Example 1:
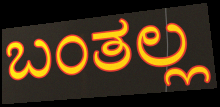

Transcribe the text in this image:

ಬಂತಲ್ಲ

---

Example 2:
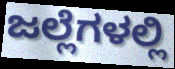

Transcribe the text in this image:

ಜಲ್ಲೆಗಳಲ್ಲಿ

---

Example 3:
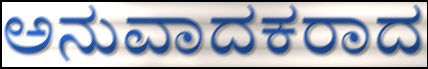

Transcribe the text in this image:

ಅನುವಾದಕರಾದ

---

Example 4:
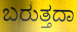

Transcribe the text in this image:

ಬರುತ್ತದಾ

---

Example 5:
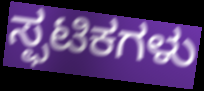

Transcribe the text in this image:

ಸ್ಫಟಿಕಗಳು